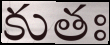
కుతః